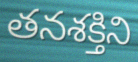
తనశక్తిని